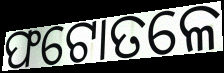
ଫଟୋତଳେ